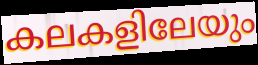
കലകളിലേയും